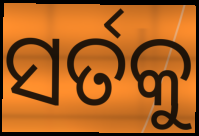
ସର୍ତକୁ